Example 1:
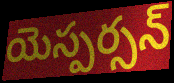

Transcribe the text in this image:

యెస్పర్సన్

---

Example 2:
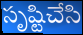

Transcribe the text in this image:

సృష్టిచేసి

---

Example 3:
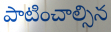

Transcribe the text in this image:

పాటించాల్సిన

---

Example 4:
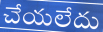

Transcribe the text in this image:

చేయలేదు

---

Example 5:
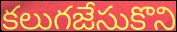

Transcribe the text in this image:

కలుగజేసుకొని